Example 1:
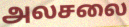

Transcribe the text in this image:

அலசலை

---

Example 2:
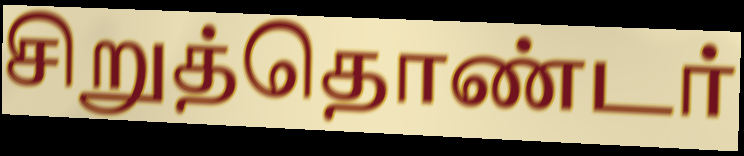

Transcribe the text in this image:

சிறுத்தொண்டர்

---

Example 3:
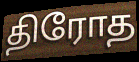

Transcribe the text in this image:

திரோத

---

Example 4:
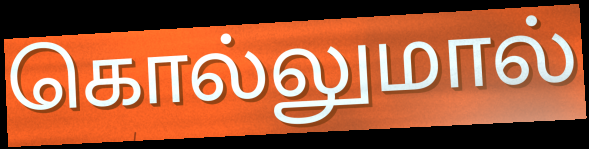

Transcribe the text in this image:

கொல்லுமால்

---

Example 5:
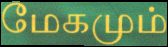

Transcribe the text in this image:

மேகமும்